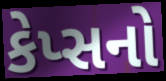
કેપ્સનો